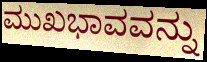
ಮುಖಭಾವವನ್ನು